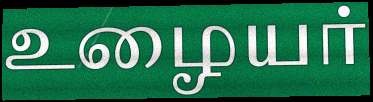
உழையர்